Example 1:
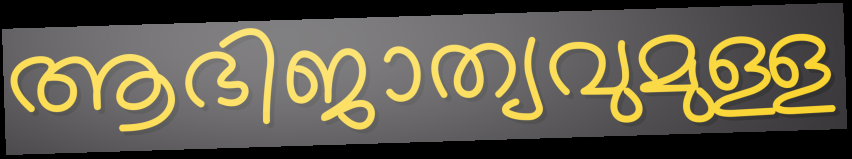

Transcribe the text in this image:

ആഭിജാത്യവുമുള്ള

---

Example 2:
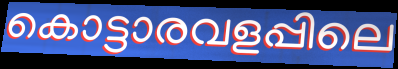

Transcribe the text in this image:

കൊട്ടാരവളപ്പിലെ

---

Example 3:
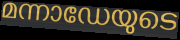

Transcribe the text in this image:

മന്നാഡേയുടെ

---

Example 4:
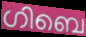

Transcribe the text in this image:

ഗിബെ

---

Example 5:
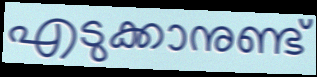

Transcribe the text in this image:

എടുക്കാനുണ്ട്